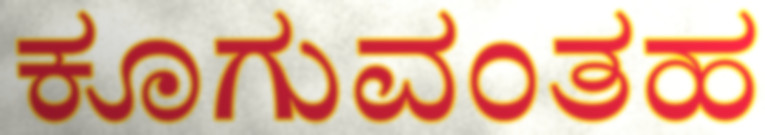
ಕೂಗುವಂತಹ